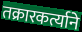
तक्रारकर्त्याने